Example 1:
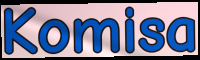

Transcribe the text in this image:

Komisa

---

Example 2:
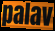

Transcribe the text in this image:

palav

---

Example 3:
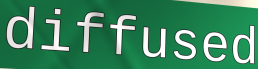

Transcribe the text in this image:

diffused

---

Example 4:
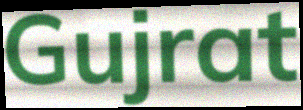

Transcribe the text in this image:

Gujrat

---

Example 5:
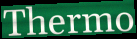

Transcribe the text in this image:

Thermo